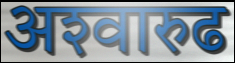
अश्वारुढ